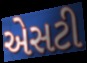
એસટી